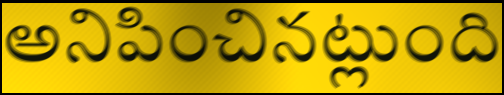
అనిపించినట్లుంది